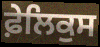
ਫ਼ੇਲਿਕੁਸ